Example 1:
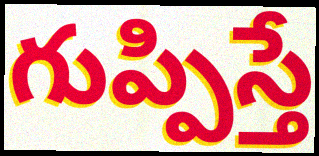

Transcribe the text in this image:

గుప్పిస్తే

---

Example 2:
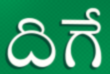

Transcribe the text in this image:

దిగే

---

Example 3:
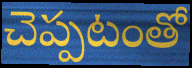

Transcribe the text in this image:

చెప్పటంతో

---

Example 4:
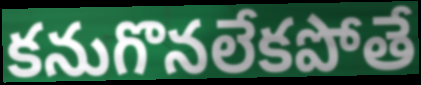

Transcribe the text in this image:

కనుగొనలేకపోతే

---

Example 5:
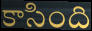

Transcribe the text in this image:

కాసింది